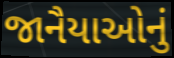
જાનૈયાઓનું